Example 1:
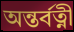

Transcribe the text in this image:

অন্তর্বত্নী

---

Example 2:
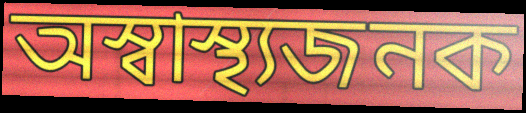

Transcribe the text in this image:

অস্বাস্থ্যজনক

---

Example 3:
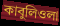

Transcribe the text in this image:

কাবুলিওলা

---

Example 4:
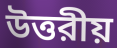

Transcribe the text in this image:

উত্তরীয়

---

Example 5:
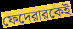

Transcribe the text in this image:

ফেদেরারকেই